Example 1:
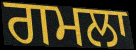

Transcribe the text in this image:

ਗਮਲਾ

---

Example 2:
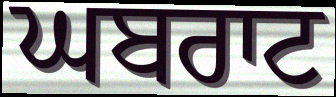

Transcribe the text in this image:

ਘਬਰਾਟ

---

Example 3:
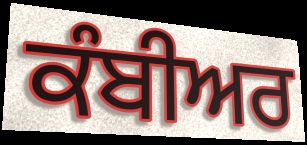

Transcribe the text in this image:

ਕੰਬੀਅਰ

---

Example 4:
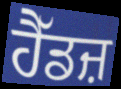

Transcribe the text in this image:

ਹੈੱਡਜ਼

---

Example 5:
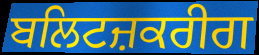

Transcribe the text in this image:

ਬਲਿਟਜ਼ਕਰੀਗ